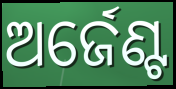
ଅର୍ଜେଣ୍ଟ